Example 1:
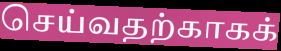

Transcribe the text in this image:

செய்வதற்காகக்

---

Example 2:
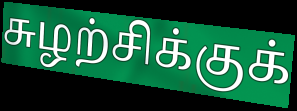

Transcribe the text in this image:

சுழற்சிக்குக்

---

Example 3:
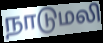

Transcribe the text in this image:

நாடுமலி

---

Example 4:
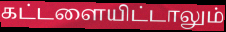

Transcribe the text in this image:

கட்டளையிட்டாலும்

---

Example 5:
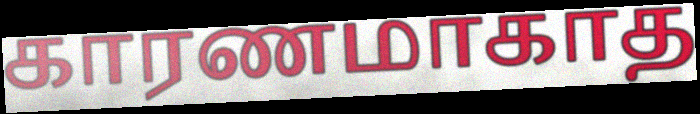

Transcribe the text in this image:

காரணமாகாத